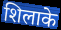
शिलाके